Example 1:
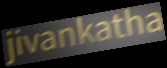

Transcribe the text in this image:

jivankatha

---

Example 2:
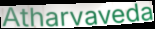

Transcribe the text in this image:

Atharvaveda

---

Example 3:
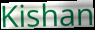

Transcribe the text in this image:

Kishan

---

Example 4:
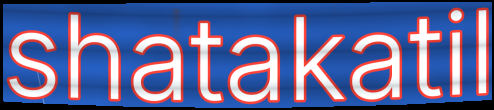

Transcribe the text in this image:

shatakatil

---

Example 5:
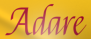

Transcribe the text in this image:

Adare